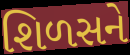
શિળસને